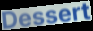
Dessert